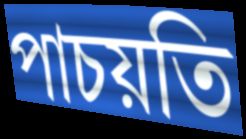
পাচয়তি